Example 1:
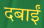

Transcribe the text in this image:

दबाईं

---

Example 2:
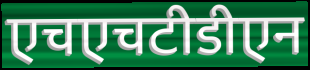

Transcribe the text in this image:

एचएचटीडीएन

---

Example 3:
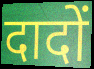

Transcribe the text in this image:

दादों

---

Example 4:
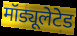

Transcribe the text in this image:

मॉड्यूलेटेड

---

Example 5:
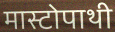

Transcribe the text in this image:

मास्टोपाथी